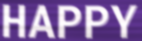
HAPPY